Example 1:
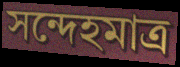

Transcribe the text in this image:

সন্দেহমাত্র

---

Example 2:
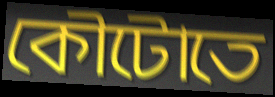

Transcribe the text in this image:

কৌটোতে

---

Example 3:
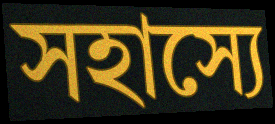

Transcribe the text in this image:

সহাস্যে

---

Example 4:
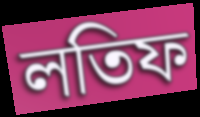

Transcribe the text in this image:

লতিফ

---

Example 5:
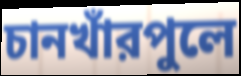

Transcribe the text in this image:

চানখাঁরপুলে